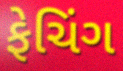
ફેચિંગ